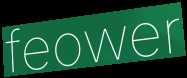
feower